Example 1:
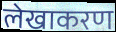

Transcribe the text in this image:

लेखाकरण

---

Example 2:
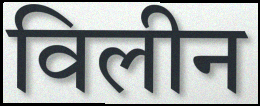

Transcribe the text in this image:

विलीन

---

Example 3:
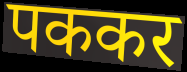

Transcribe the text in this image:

पककर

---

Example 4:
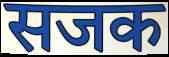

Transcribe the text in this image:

सजक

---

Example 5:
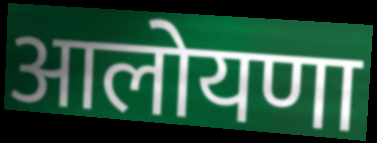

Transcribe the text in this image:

आलोयणा